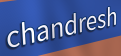
chandresh